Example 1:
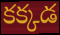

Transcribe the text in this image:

కక్కడ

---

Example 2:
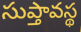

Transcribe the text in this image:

సుప్తావస్థ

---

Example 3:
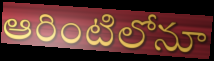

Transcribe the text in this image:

ఆరింటిలోనూ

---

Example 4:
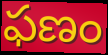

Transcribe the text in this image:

ఫణం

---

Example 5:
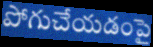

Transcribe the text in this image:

పోగుచేయడంపై